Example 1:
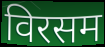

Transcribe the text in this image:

विरसम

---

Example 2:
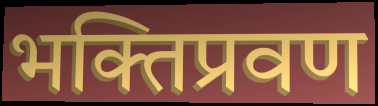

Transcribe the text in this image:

भक्तिप्रवण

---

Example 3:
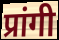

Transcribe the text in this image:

प्रांगी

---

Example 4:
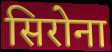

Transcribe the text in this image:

सिरोना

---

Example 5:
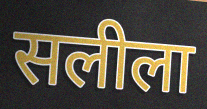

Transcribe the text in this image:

सलीला